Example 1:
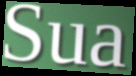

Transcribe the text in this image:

Sua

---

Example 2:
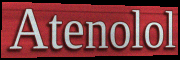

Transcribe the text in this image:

Atenolol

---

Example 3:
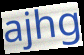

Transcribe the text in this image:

ajhg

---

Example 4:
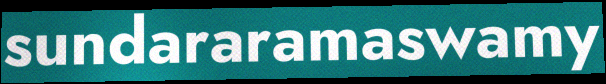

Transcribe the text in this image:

sundararamaswamy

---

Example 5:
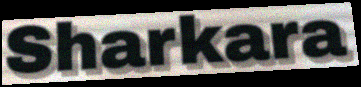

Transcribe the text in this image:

Sharkara